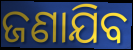
ଜଣାଯିବ